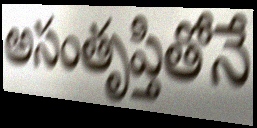
అసంతృప్తితోనే